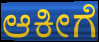
ಆಕೀಗೆ